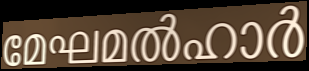
മേഘമൽഹാർ